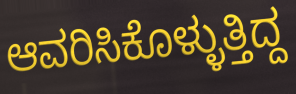
ಆವರಿಸಿಕೊಳ್ಳುತ್ತಿದ್ದ